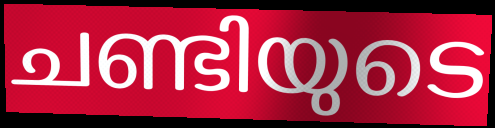
ചണ്ടിയുടെ